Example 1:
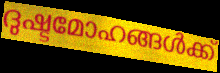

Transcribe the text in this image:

ദുഷ്ടമോഹങ്ങൾക്ക്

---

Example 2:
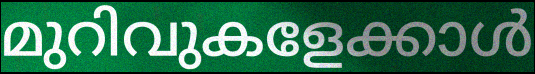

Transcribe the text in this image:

മുറിവുകളേക്കാൾ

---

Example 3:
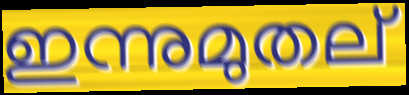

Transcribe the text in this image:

ഇന്നുമുതല്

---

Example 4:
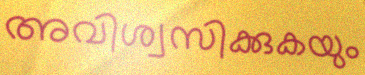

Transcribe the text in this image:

അവിശ്വസിക്കുകയും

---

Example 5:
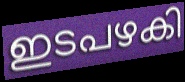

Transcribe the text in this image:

ഇടപഴകി